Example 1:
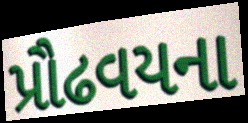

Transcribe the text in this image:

પ્રૌઢવયના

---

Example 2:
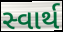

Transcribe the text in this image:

સ્વાર્થ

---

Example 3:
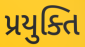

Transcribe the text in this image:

પ્રયુક્તિ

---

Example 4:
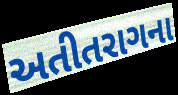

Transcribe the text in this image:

અતીતરાગના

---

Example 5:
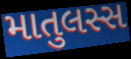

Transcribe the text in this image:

માતુલસ્સ